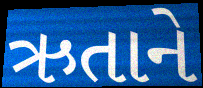
ઋતાને